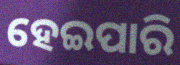
ହେଇପାରି